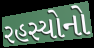
રહસ્યોનો